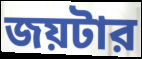
জয়টার